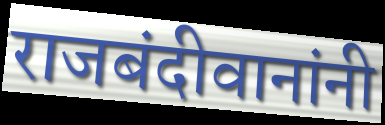
राजबंदीवानांनी